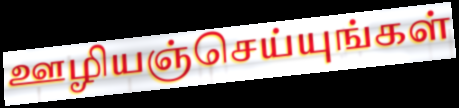
ஊழியஞ்செய்யுங்கள்